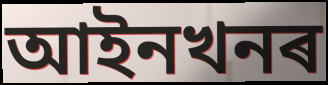
আইনখনৰ